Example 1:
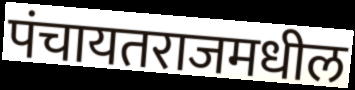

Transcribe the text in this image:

पंचायतराजमधील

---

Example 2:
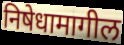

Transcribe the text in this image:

निषेधामागील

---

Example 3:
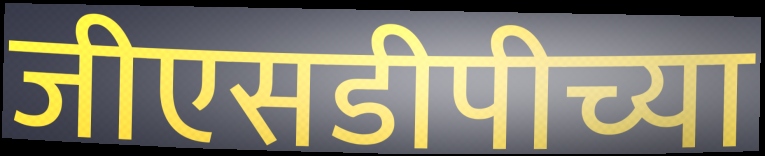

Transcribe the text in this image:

जीएसडीपीच्या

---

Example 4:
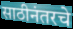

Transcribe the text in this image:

साठीनंतरचे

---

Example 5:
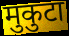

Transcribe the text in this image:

मुकुटा